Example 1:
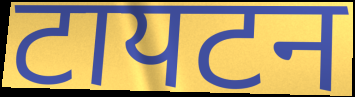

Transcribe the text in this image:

टायटन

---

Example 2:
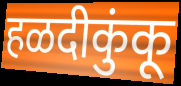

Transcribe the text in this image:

हळदीकुंकू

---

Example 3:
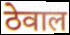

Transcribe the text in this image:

ठेवाल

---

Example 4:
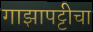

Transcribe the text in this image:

गाझापट्टीचा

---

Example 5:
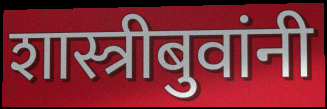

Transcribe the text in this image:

शास्त्रीबुवांनी